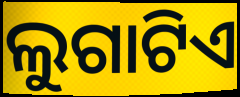
ଲୁଗାଟିଏ